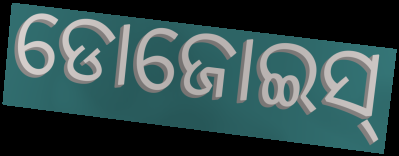
ଡୋଜୋଇସ୍